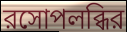
রসোপলব্ধির